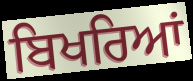
ਬਿਖਰਿਆਂ